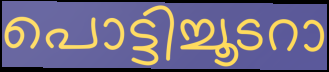
പൊട്ടിച്ചൂടറാ